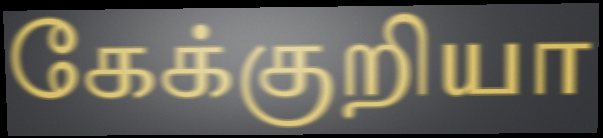
கேக்குறியா